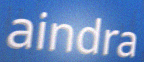
aindra